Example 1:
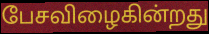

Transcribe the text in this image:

பேசவிழைகின்றது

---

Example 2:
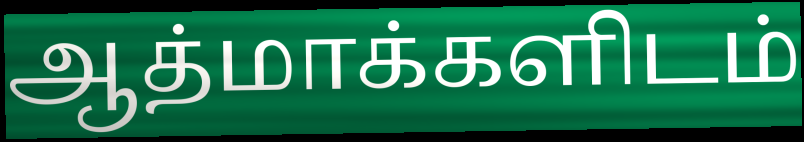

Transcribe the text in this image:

ஆத்மாக்களிடம்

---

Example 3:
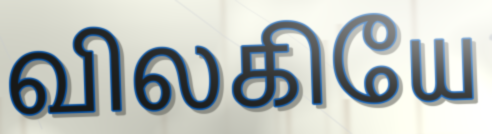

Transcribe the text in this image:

விலகியே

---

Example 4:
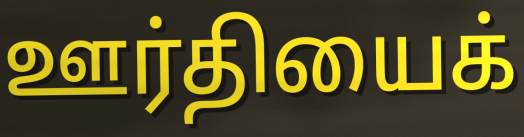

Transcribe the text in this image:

ஊர்தியைக்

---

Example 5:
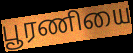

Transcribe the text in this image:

பூரணியை